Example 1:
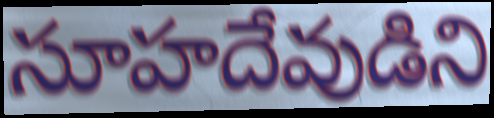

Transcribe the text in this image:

సూహదేవుడిని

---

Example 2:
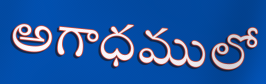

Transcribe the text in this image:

అగాధములో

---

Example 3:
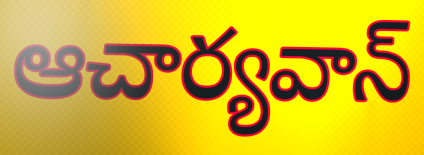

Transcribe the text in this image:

ఆచార్యవాన్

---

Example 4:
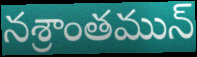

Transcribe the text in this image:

నశ్రాంతమున్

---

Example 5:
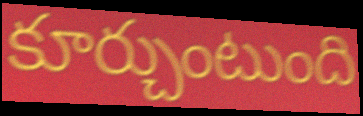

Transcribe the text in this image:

కూర్చుంటుంది